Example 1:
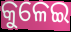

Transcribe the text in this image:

କୁଳେଇ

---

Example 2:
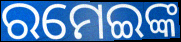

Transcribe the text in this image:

ରମେଇଙ୍କ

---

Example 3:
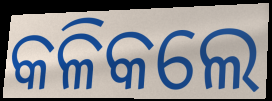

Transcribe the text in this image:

କଳିକଲେ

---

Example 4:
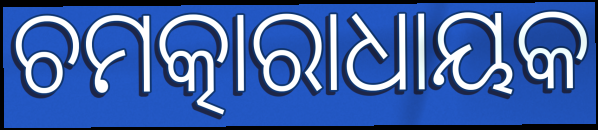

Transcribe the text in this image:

ଚମତ୍କାରାଧାୟକ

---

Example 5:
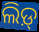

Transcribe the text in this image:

ଲିଡ଼୍